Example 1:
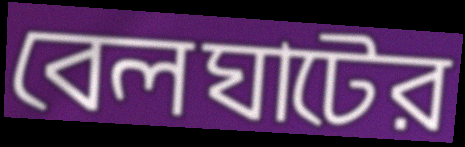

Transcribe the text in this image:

বেলঘাটের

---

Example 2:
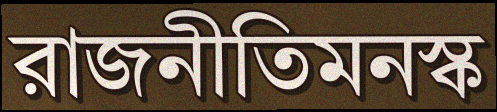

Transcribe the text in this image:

রাজনীতিমনস্ক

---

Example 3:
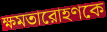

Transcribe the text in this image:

ক্ষমতারোহণকে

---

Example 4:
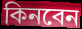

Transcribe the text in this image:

কিনবেন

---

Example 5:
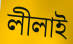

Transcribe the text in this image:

লীলাই